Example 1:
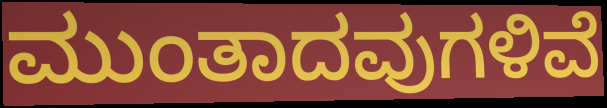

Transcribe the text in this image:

ಮುಂತಾದವುಗಳಿವೆ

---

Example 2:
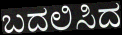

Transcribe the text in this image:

ಬದಲಿಸಿದ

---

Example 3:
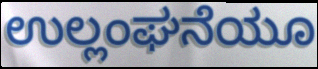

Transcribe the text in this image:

ಉಲ್ಲಂಘನೆಯೂ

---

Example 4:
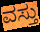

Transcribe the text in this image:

ವಸ್ತು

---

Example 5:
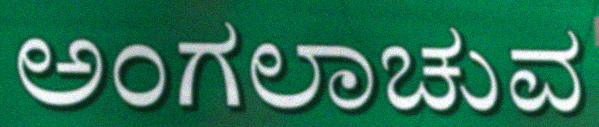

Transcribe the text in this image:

ಅಂಗಲಾಚುವ